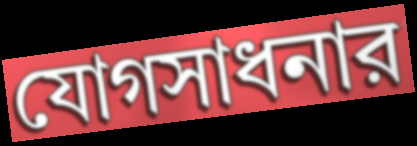
যোগসাধনার